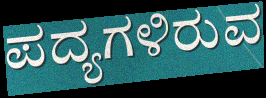
ಪದ್ಯಗಳಿರುವ